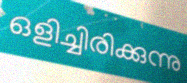
ഒളിച്ചിരിക്കുന്നു